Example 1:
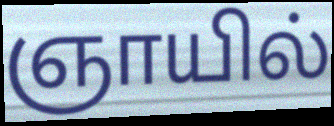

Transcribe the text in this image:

ஞாயில்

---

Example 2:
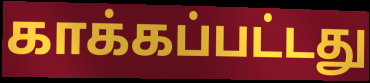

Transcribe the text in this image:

காக்கப்பட்டது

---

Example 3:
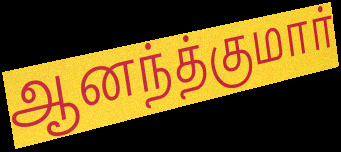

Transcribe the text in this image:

ஆனந்த்குமார்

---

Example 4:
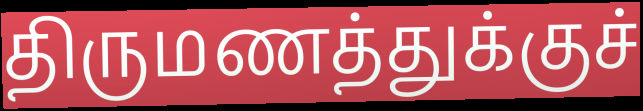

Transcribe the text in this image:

திருமணத்துக்குச்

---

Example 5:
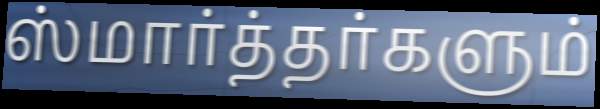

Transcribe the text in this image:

ஸ்மார்த்தர்களும்